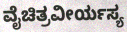
ವೈಚಿತ್ರವೀರ್ಯಸ್ಯ